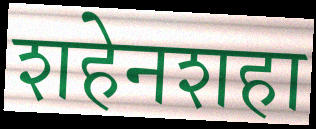
शहेनशहा